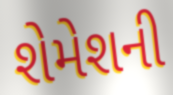
શેમેશની